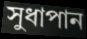
সুধাপান